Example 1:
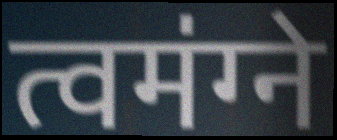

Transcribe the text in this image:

त्वम॑ग्ने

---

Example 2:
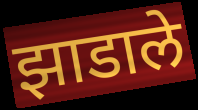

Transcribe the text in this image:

झाडाले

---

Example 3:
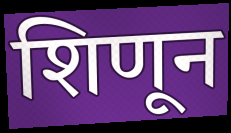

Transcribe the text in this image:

शिणून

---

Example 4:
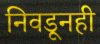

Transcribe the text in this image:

निवडूनही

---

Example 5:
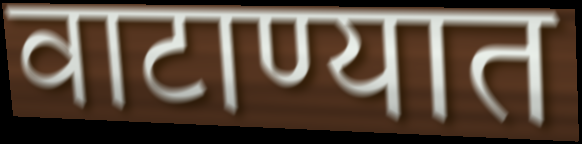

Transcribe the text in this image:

वाटाण्यात